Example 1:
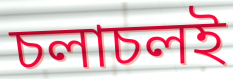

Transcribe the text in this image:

চলাচলই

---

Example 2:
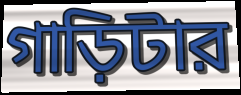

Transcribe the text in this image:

গাড়িটার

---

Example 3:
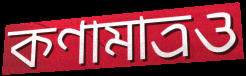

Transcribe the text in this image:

কণামাত্রও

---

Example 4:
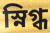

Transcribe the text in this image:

স্নিগ্ধ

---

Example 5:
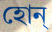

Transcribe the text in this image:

হোন্